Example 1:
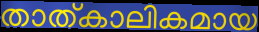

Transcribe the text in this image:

താത്കാലികമായ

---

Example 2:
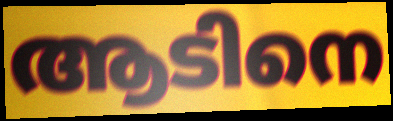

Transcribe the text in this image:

ആടിനെ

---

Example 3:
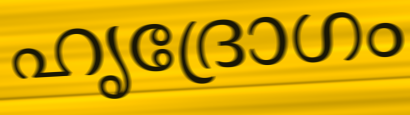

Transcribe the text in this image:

ഹൃദ്രോഗം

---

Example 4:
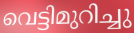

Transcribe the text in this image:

വെട്ടിമുറിച്ചു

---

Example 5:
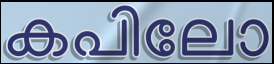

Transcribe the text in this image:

കപിലോ